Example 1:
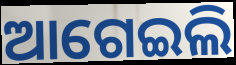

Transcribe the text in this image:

ଆଗେଇଲି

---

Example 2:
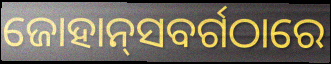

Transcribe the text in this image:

ଜୋହାନ୍‌ସବର୍ଗଠାରେ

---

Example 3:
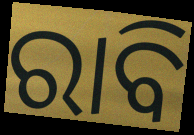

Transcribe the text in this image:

ରାବି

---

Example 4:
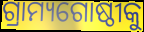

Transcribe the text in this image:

ଗ୍ରାମ୍ୟଗୋଷ୍ଠୀକୁ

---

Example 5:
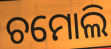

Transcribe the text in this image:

ଚମୋଲି